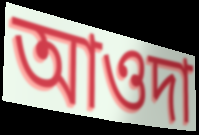
আওদা